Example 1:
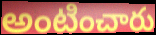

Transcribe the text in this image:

అంటించారు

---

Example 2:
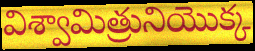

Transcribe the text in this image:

విశ్వామిత్రునియొక్క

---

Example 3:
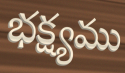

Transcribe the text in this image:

భక్ష్యము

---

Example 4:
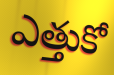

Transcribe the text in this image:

ఎత్తుకో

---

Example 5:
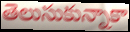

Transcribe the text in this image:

తెలుసుకున్నాకా